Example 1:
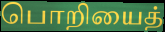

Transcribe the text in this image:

பொறியைத்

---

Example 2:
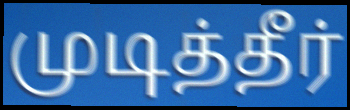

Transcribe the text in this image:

முடித்தீர்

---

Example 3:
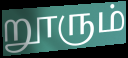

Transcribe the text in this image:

றூரும்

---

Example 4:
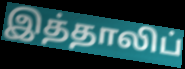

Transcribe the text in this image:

இத்தாலிப்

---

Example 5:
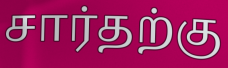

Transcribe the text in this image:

சார்தற்கு